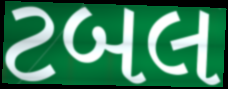
ટબલ